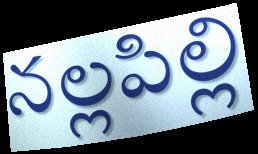
నల్లపిల్లి